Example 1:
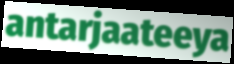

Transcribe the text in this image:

antarjaateeya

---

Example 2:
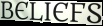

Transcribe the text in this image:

BELIEFS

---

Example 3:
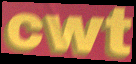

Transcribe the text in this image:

cwt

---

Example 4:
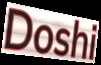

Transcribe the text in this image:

Doshi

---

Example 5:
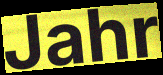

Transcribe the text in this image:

Jahr